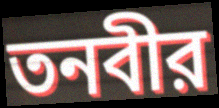
তনবীর